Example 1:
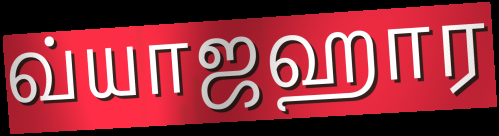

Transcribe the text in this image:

வ்யாஜஹார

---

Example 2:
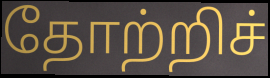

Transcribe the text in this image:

தோற்றிச்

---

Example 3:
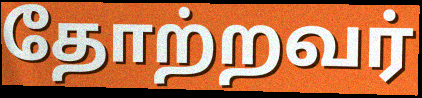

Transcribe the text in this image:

தோற்றவர்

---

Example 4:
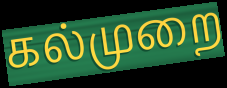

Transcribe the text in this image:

கல்முறை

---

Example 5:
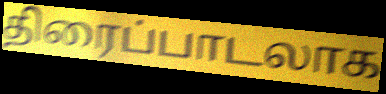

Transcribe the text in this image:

திரைப்பாடலாக